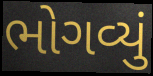
ભોગવ્યું